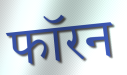
फॉरन